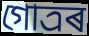
গোত্ৰৰ